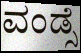
ವಂಡ್ಸೆ